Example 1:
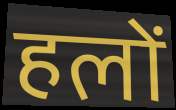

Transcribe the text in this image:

हलों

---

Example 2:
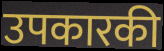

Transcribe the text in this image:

उपकारकी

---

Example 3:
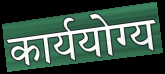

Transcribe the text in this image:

कार्ययोग्य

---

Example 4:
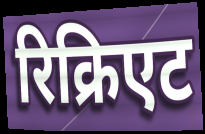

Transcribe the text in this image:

रिक्रिएट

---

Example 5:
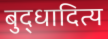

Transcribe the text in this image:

बुद्धादित्य